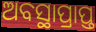
ଅବସ୍ଥାପ୍ରାପ୍ତ